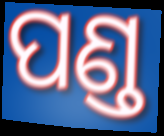
ପଣ୍ଡ